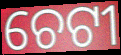
ଚେଟୀ